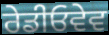
ਰੇਡੀਓਵੇਵ